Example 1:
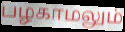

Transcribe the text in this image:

பழகாமலும்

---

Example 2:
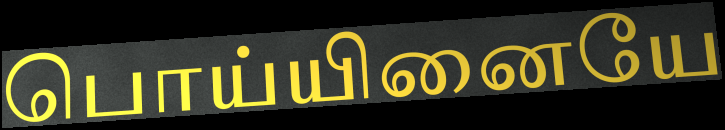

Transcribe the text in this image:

பொய்யினையே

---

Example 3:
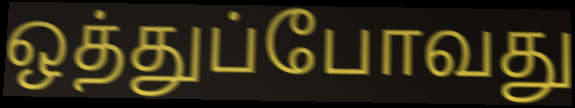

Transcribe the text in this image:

ஒத்துப்போவது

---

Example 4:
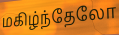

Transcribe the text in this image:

மகிழ்ந்தேலோ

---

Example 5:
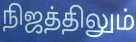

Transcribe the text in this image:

நிஜத்திலும்